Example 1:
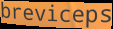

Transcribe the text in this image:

breviceps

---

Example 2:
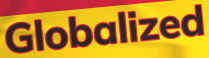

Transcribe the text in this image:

Globalized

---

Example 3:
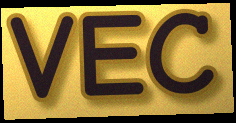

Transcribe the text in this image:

VEC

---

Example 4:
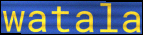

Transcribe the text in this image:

watala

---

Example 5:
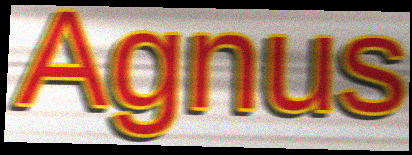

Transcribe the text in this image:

Agnus